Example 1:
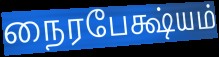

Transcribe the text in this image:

நைரபேக்ஷ்யம்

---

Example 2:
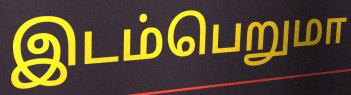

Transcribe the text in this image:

இடம்பெறுமா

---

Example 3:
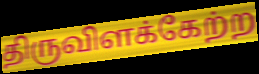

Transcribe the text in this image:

திருவிளக்கேற்ற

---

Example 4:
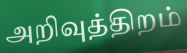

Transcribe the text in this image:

அறிவுத்திறம்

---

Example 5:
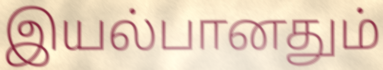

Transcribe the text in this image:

இயல்பானதும்